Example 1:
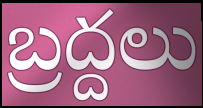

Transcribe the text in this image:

బ్రద్దలు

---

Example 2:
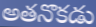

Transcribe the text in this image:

అతనొకడు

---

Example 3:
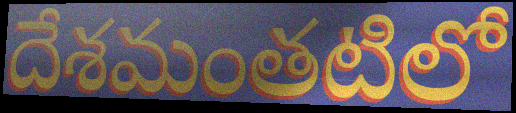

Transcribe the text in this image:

దేశమంతటిలో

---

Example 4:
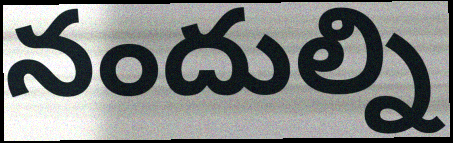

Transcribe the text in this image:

నందుల్ని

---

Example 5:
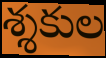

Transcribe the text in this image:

శ్శకుల